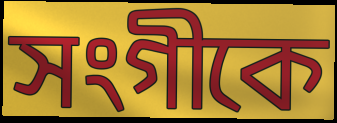
সংগীকে